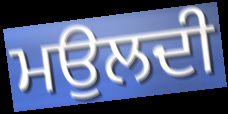
ਮਉਲਦੀ